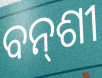
ବନ୍‍ଶୀ